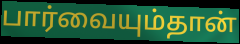
பார்வையும்தான்